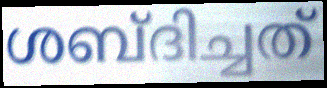
ശബ്ദിച്ചത്